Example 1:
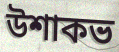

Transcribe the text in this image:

উশাকভ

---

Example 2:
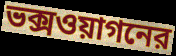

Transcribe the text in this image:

ভক্সওয়াগনের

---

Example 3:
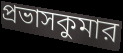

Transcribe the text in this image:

প্রভাসকুমার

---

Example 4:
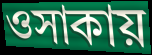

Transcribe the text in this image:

ওসাকায়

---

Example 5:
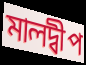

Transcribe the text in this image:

মালদ্বীপ